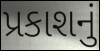
પ્રકાશનું